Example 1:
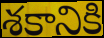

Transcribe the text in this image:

శకానికి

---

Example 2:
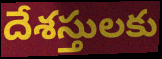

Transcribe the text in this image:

దేశస్తులకు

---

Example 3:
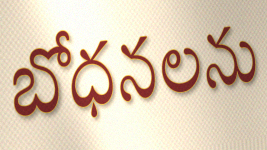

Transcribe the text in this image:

బోధనలను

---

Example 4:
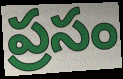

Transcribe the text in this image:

ప్రసం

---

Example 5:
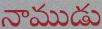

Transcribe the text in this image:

నాముడు